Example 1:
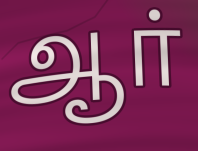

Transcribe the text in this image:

ஆர்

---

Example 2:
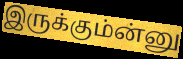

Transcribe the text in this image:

இருக்கும்ன்னு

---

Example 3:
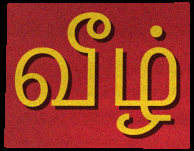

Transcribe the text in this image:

வீழ்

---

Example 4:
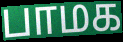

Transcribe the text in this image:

பாமக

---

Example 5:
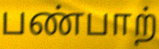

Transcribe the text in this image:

பண்பாற்